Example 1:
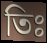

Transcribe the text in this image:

তিঃ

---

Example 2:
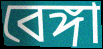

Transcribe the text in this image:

বেঙ্গা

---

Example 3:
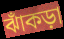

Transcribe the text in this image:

ঝাঁকড়া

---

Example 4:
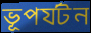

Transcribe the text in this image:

ভূপর্যটন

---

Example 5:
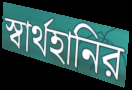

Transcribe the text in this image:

স্বার্থহানির